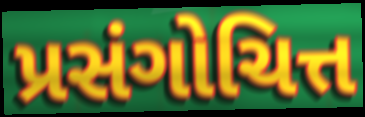
પ્રસંગોચિત્ત